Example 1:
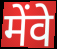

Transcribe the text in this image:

मेंवे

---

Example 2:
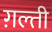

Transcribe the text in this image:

ग़ल्ती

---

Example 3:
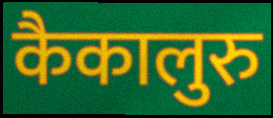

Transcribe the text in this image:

कैकालुरु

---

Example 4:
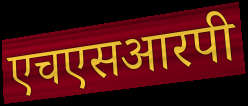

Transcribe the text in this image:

एचएसआरपी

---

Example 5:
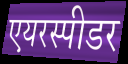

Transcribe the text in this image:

एयरस्पीडर